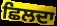
ਛਿਲਦਾ